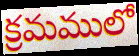
క్రమములో